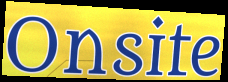
Onsite